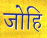
जोहि